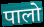
पालो